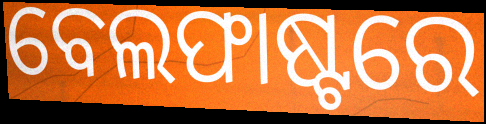
ବେଲଫାଷ୍ଟରେ